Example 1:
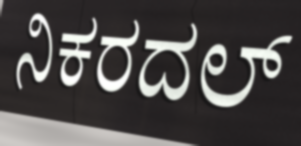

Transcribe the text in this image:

ನಿಕರದಲ್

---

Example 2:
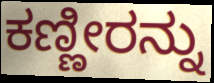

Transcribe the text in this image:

ಕಣ್ಣೀರನ್ನು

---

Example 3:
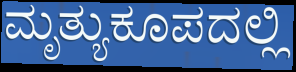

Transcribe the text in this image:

ಮೃತ್ಯುಕೂಪದಲ್ಲಿ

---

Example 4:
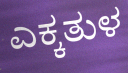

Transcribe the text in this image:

ಎಕ್ಕತುಳ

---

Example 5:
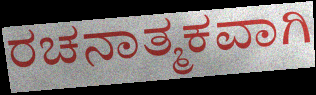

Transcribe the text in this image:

ರಚನಾತ್ಮಕವಾಗಿ